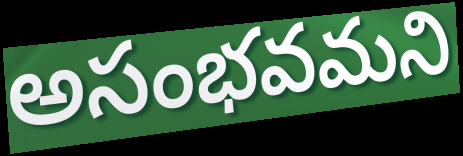
అసంభవమని